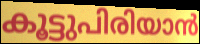
കൂട്ടുപിരിയാൻ